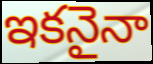
ఇకనైనా